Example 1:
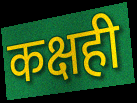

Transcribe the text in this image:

कक्षही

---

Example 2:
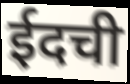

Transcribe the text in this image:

ईदची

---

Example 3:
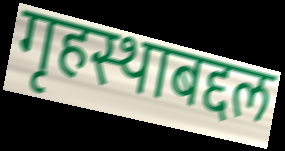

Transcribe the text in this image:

गृहस्थाबद्दल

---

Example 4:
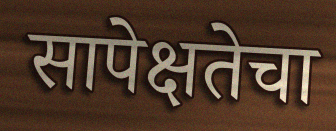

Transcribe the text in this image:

सापेक्षतेचा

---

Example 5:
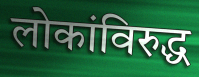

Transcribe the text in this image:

लोकांविरुद्ध